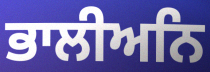
ਭਾਲੀਅਨਿ